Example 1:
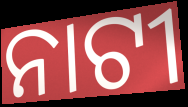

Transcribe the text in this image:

ନାଟୀ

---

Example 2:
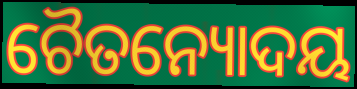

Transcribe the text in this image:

ଚୈତନ୍ୟୋଦୟ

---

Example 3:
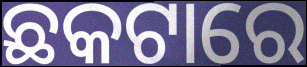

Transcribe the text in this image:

ଛକଟାରେ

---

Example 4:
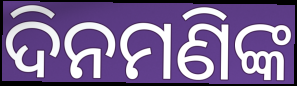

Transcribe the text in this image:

ଦିନମଣିଙ୍କ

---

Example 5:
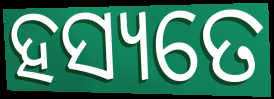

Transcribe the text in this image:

ହସ୍ୟତେ